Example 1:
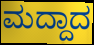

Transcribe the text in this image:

ಮದ್ದಾದ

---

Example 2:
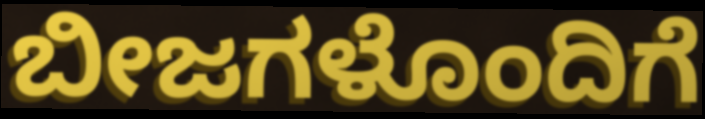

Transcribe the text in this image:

ಬೀಜಗಳೊಂದಿಗೆ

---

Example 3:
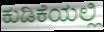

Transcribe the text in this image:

ಕುಡಿಕೆಯಲ್ಲಿ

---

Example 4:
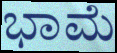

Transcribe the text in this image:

ಭಾಮೆ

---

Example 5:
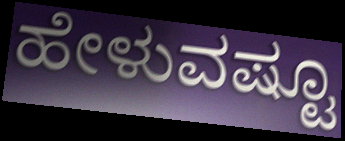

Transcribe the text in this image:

ಹೇಳುವಷ್ಟೂ